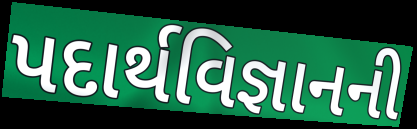
પદાર્થવિજ્ઞાનની